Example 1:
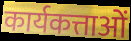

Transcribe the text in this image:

कार्यकत्ताओं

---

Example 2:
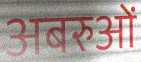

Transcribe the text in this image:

अबरुओं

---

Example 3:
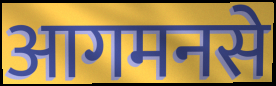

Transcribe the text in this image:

आगमनसे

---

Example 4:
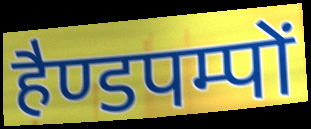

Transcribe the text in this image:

हैण्डपम्पों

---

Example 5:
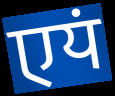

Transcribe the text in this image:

एयं